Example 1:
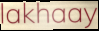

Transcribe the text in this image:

lakhaay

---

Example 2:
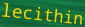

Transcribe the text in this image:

lecithin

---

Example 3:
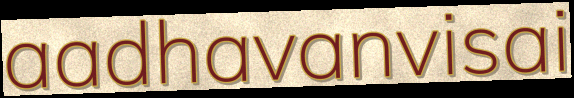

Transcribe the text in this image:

aadhavanvisai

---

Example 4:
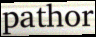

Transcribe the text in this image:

pathor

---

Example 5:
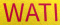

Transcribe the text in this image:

WATI